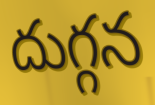
దుగ్గన